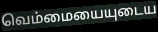
வெம்மையையுடைய